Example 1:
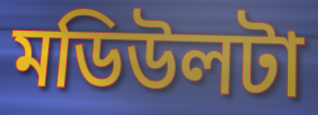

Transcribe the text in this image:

মডিউলটা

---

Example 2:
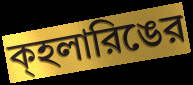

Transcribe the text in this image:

ক্হলারিঙের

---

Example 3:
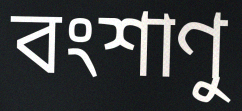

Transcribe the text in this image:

বংশাণু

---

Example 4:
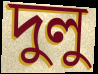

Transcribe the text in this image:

দুলু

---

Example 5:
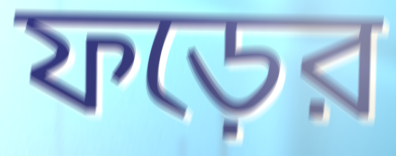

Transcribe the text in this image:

ফড়ের